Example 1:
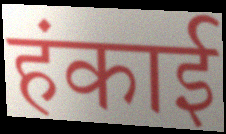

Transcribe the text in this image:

हंकाई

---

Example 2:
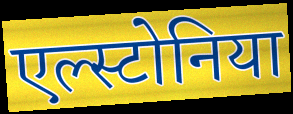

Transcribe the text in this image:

एल्स्टोनिया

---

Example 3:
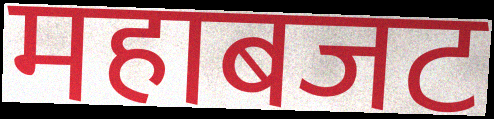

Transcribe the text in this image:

महाबजट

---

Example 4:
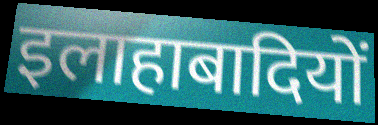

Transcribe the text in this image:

इलाहाबादियों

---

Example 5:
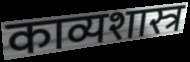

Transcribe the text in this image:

काव्यशास्त्र